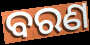
ବରଣ